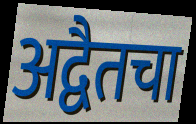
अद्वैतचा